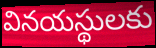
వినయస్థులకు